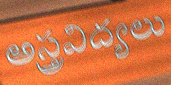
అస్త్రవిద్యలు